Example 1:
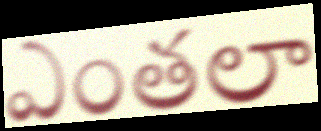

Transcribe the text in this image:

ఎంతలా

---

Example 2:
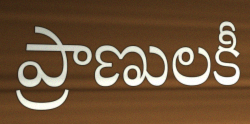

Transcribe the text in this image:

ప్రాణులకీ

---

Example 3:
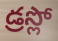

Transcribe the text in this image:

డ్రస్లో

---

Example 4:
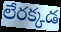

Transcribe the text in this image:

లేరక్కడ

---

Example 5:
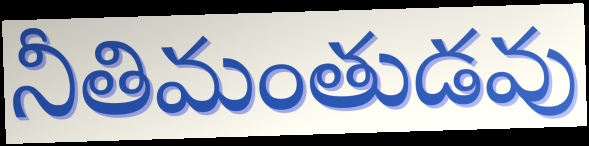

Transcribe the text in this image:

నీతిమంతుడవు